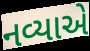
નવ્યાએ